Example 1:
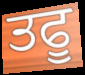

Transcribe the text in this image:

ਤਫੂ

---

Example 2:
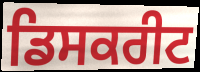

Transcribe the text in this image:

ਡਿਸਕਰੀਟ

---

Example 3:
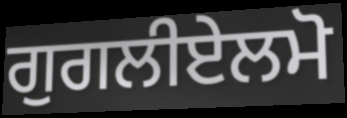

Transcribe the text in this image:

ਗੁਗਲੀਏਲਮੋ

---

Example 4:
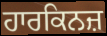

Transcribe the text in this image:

ਹਾਰਕਿਨਜ਼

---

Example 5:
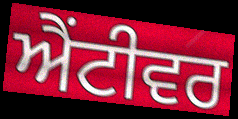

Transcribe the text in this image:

ਐਂਟੀਵਰ